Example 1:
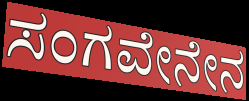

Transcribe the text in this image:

ಸಂಗವೇನೇನ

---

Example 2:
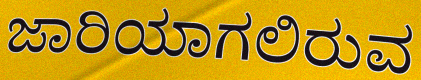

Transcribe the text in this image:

ಜಾರಿಯಾಗಲಿರುವ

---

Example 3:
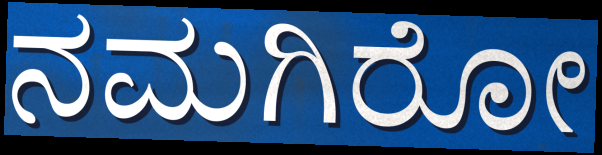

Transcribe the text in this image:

ನಮಗಿರೋ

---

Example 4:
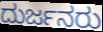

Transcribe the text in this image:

ದುರ್ಜನರು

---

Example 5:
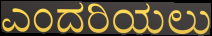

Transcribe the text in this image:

ಎಂದರಿಯಲು